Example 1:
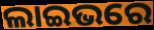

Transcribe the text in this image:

ଲାଇଭରେ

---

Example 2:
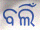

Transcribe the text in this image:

ବଲିଁ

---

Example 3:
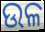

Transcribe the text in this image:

ଉଳ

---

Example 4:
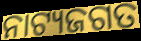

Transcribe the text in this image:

ନାଟ୍ୟଜଗତ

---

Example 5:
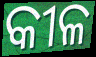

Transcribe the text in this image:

କୀଳ